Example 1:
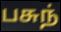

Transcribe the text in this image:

பசுந்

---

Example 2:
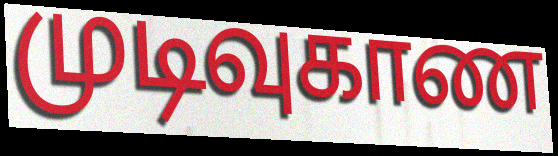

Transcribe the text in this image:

முடிவுகாண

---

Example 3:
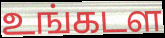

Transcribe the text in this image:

உங்கடள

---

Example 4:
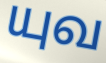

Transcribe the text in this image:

யுவ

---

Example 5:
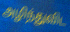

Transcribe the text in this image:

அழிந்துவிட